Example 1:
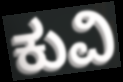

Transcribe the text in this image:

ಕುವಿ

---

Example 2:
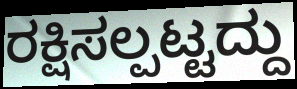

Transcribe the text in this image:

ರಕ್ಷಿಸಲ್ಪಟ್ಟದ್ದು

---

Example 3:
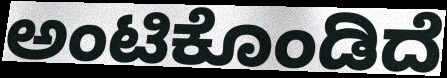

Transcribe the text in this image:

ಅಂಟಿಕೊಂಡಿದೆ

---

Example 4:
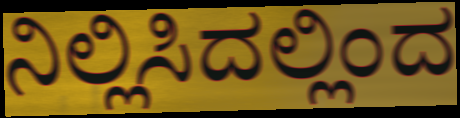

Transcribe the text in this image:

ನಿಲ್ಲಿಸಿದಲ್ಲಿಂದ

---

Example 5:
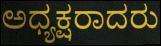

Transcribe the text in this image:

ಅಧ್ಯಕ್ಷರಾದರು